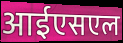
आईएसएल